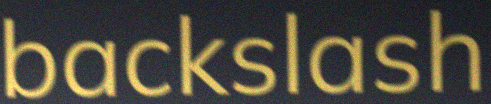
backslash